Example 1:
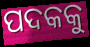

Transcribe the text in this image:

ପଦକକୁ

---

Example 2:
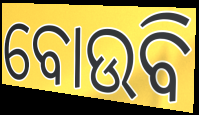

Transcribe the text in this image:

ବୋଉବି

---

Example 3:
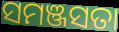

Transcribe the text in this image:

ସମଞ୍ଜସତା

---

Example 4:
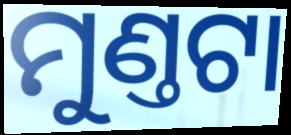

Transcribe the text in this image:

ମୁଣ୍ତଟା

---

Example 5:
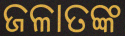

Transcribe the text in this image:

ଜଳାତଙ୍କ